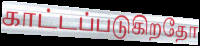
காட்டப்படுகிறதோ